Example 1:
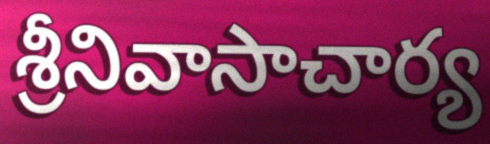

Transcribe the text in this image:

శ్రీనివాసాచార్య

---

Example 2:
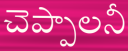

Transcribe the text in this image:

చెప్పాలనీ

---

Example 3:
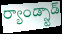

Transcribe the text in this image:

ర్యాండ్స్టాడ్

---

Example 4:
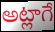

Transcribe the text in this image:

అట్లాగే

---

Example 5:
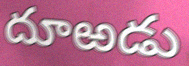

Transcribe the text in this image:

దూఱడు